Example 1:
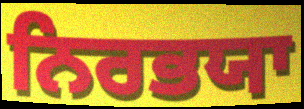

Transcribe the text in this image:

ਨਿਰਭਯਾ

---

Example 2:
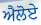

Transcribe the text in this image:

ਐਲੋਏ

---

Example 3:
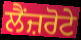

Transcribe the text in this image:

ਲੈਂਜ਼ਰੋਟੇ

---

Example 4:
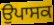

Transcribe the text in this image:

ਉਪਾਸਕ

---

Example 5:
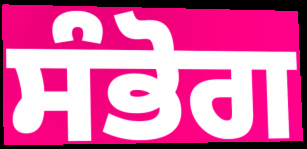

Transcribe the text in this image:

ਸੰਭੋਗ